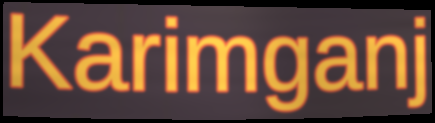
Karimganj